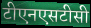
टीएनएसटीसी